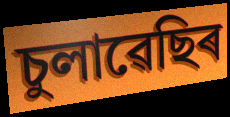
চুলাৱেছিৰ